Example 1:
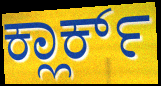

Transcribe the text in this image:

ಕ್ಲಾರ್ಕ್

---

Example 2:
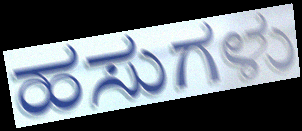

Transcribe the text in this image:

ಹಸುಗಳು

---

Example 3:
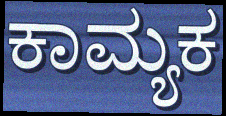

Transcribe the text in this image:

ಕಾಮ್ಯಕ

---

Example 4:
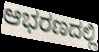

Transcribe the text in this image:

ಆಭರಣದಲ್ಲಿ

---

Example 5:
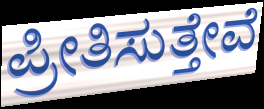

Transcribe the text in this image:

ಪ್ರೀತಿಸುತ್ತೇವೆ